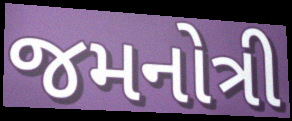
જમનોત્રી